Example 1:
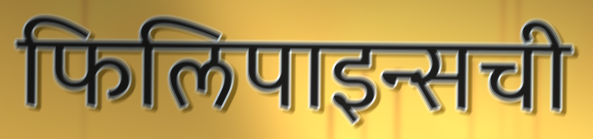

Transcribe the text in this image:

फिलिपाइन्सची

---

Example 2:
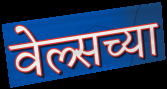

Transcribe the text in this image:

वेल्सच्या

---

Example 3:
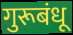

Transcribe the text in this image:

गुरूबंधू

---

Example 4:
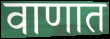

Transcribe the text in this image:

वाणात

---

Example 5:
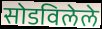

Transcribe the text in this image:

सोडविलेले